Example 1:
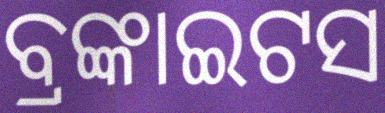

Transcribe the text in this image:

ବ୍ରଙ୍କାଇଟସ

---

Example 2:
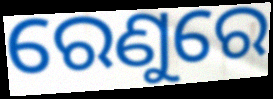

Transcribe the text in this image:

ରେଣୁରେ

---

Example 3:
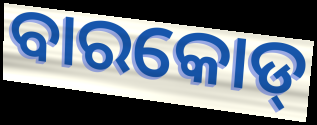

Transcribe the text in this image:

ବାରକୋଡ୍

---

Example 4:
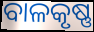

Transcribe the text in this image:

ବାଳକୃଷ୍ଣ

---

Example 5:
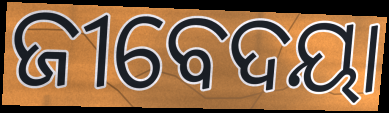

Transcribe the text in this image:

ଜୀବେଦୟା